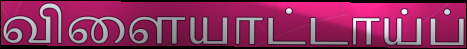
விளையாட்டாய்ப்